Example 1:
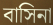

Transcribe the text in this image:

বাসিনা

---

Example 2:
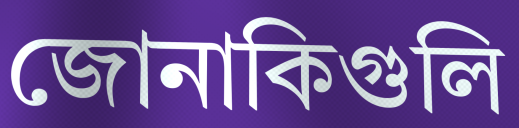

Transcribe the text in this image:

জোনাকিগুলি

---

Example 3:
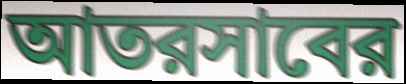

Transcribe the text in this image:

আতরসাবের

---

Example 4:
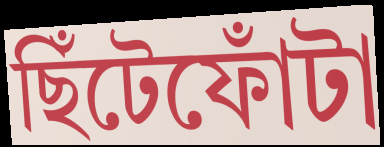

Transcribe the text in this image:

ছিঁটেফোঁটা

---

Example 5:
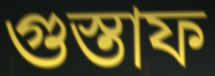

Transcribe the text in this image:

গুস্তাফ